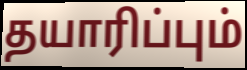
தயாரிப்பும்